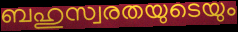
ബഹുസ്വരതയുടെയും